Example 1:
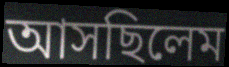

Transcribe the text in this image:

আসছিলেম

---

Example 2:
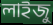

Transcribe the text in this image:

লাইজু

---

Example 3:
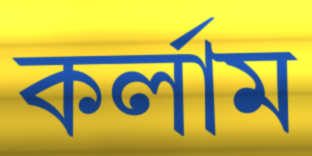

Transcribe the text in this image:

কর্লাম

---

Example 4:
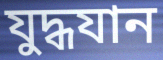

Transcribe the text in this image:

যুদ্ধযান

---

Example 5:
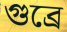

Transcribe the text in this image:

গুব্রে